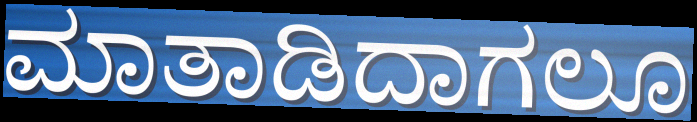
ಮಾತಾಡಿದಾಗಲೂ